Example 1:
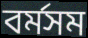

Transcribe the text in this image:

বর্মসম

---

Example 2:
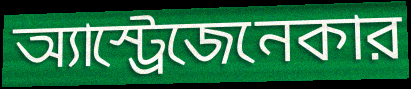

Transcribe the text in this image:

অ্যাস্ট্রেজেনেকার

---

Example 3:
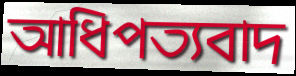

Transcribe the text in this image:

আধিপত্যবাদ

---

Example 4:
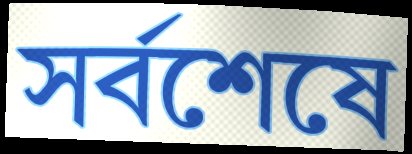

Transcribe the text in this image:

সর্বশেষে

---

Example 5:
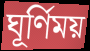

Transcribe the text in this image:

ঘূর্ণিময়